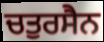
ਚਤੁਰਸੈਨ